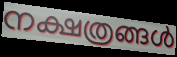
നക്ഷത്രങ്ങൾ